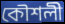
কৌশলী